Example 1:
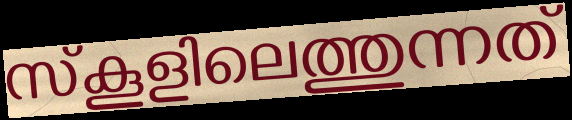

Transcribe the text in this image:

സ്‌കൂളിലെത്തുന്നത്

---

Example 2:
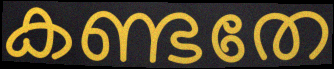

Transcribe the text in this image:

കണ്ടതേ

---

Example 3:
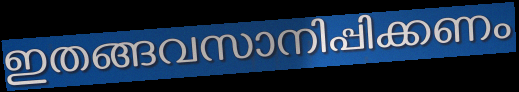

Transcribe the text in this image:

ഇതങ്ങവസാനിപ്പിക്കണം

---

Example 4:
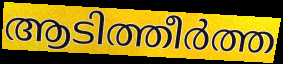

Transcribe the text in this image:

ആടിത്തീർത്ത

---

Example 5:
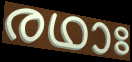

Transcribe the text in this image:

രഥാഃ